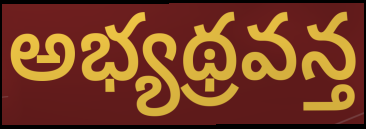
అభ్యథ్రవన్త